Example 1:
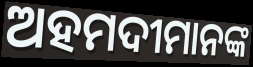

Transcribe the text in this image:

ଅହମଦୀମାନଙ୍କ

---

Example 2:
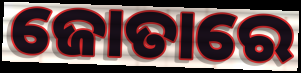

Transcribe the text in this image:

ଜୋତାରେ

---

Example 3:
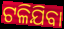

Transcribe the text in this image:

ଟଳିଯିବା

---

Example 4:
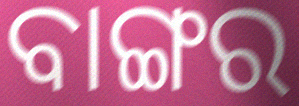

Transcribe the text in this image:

ବାଙ୍ଗର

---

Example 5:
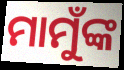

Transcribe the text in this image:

ମାମୁଁଙ୍କ